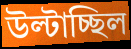
উল্টাচ্ছিল